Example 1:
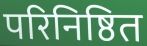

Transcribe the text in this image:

परिनिष्ठित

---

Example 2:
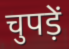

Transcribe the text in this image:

चुपड़ें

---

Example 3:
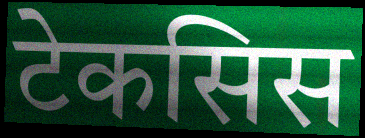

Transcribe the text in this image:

टेकसिस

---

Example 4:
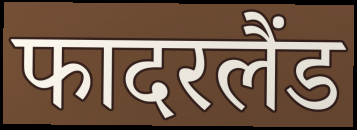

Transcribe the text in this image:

फादरलैंड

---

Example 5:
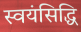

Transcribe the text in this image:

स्वयंसिद्धि